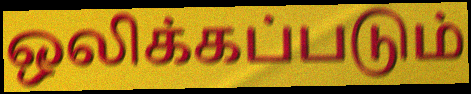
ஒலிக்கப்படும்